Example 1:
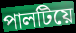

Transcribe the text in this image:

পালটিয়ে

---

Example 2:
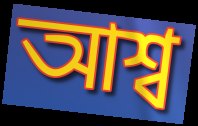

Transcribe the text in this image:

আশ্ব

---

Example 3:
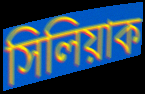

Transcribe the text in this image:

সিলিয়াক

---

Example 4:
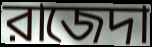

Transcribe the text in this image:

রাজেদা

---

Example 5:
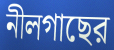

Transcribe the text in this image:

নীলগাছের